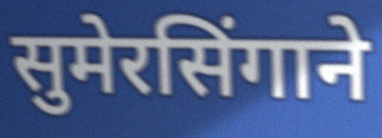
सुमेरसिंगाने